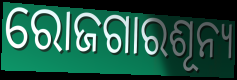
ରୋଜଗାରଶୂନ୍ୟ